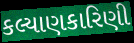
કલ્યાણકારિણી